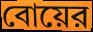
বোয়ের